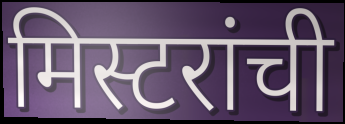
मिस्टरांची